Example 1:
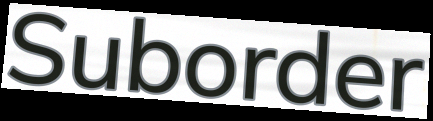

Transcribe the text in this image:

Suborder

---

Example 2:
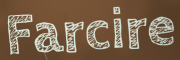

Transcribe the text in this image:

Farcire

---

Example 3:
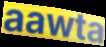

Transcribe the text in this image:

aawta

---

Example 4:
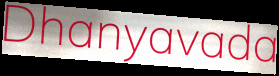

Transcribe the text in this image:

Dhanyavada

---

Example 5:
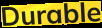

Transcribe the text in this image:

Durable